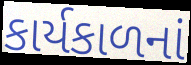
કાર્યકાળનાં